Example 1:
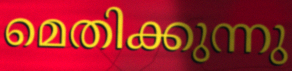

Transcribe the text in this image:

മെതിക്കുന്നു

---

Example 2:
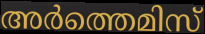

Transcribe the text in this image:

അർത്തെമിസ്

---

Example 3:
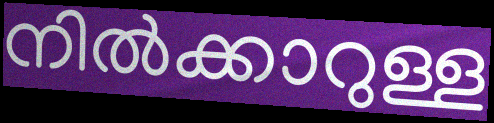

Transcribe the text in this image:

നിൽക്കാറുള്ള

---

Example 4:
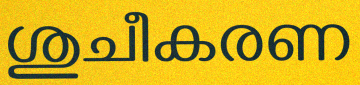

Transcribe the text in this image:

ശുചീകരണ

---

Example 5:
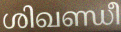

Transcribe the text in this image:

ശിഖണ്ഡീ